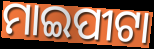
ମାଇପୀଟା